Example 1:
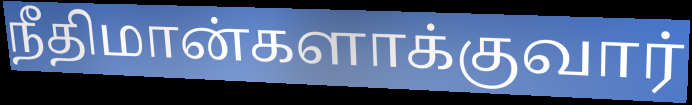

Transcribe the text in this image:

நீதிமான்களாக்குவார்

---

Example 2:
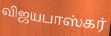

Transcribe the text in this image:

விஜயபாஸ்கர்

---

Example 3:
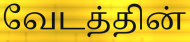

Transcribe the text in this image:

வேடத்தின்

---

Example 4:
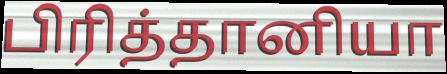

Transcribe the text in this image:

பிரித்தானியா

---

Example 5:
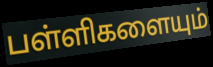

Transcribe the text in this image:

பள்ளிகளையும்